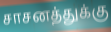
சாசனத்துக்கு